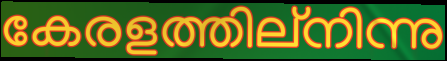
കേരളത്തില്നിന്നു